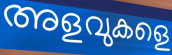
അളവുകളെ